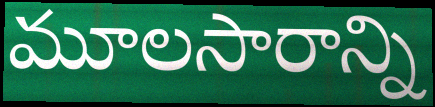
మూలసారాన్ని